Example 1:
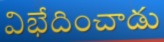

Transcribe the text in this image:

విభేదించాడు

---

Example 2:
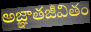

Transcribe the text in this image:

అజ్ఞాతజీవితం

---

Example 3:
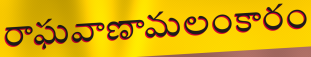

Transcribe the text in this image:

రాఘవాణామలంకారం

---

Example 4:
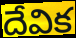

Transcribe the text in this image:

దేవిక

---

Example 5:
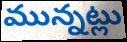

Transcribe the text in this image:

మున్నట్లు